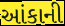
આંકાની